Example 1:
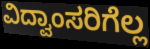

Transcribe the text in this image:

ವಿದ್ವಾಂಸರಿಗೆಲ್ಲ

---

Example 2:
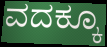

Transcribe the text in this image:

ವದಕ್ಕೂ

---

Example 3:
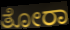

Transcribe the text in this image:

ತೋರಾ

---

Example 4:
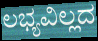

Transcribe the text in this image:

ಲಭ್ಯವಿಲ್ಲದ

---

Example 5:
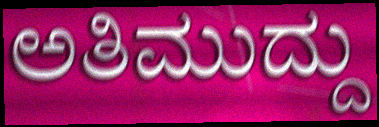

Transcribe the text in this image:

ಅತಿಮುದ್ದು